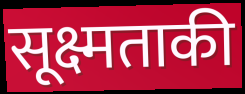
सूक्ष्मताकी